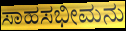
ಸಾಹಸಭೀಮನು